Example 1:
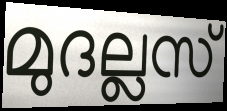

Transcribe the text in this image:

മുദല്ലസ്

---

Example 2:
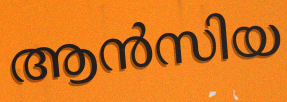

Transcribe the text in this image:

ആൻസിയ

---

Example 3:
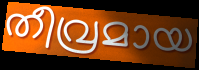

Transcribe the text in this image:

തീവ്രമായ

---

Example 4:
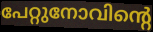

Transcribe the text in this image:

പേറ്റുനോവിന്റെ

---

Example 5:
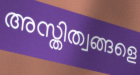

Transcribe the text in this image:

അസ്തിത്വങ്ങളെ